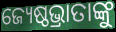
ଜ୍ୟେଷ୍ଠଭ୍ରାତାଙ୍କୁ